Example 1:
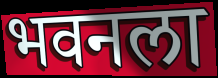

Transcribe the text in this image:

भवनला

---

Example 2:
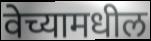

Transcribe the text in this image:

वेच्यामधील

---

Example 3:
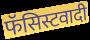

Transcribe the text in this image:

फॅसिस्टवादी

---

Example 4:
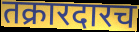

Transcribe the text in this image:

तक्रारदारच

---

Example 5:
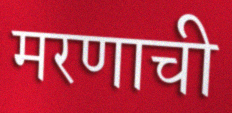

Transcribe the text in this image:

मरणाची